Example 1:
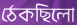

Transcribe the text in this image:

ঠেকছিলো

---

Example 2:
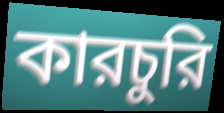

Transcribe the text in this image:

কারচুরি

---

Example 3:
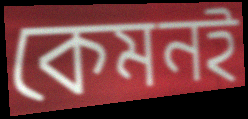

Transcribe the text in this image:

কেমনই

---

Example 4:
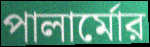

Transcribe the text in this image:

পালার্মোর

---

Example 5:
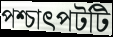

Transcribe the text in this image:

পশ্চাৎপটটি